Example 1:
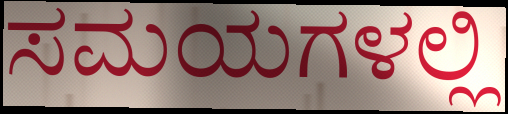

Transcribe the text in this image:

ಸಮಯಗಳಲ್ಲಿ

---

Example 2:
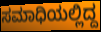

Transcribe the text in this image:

ಸಮಾಧಿಯಲ್ಲಿದ್ದ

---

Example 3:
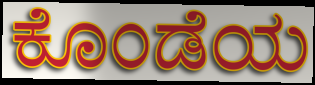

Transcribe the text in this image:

ಕೊಂಡೆಯ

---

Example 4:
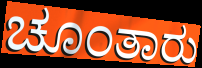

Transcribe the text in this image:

ಚೂಂತಾರು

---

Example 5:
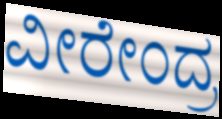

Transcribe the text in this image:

ವೀರೇಂದ್ರ